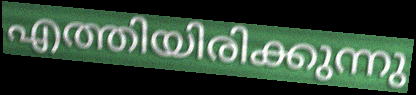
എത്തിയിരിക്കുന്നു